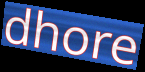
dhore